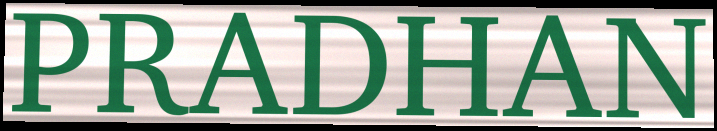
PRADHAN